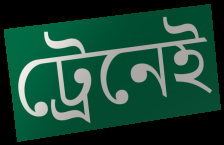
ট্রেনেই